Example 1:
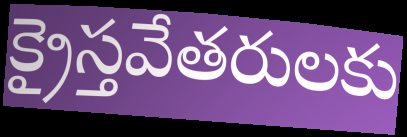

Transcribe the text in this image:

క్రైస్తవేతరులకు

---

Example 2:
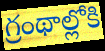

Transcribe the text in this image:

గ్రంథాల్లోకి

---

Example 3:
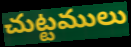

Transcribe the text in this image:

చుట్టములు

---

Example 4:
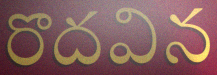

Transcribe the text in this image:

రొదవిన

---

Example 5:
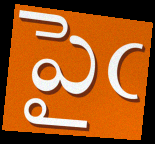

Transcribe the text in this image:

పైఁ